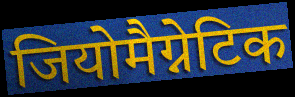
जियोमैग्नेटिक